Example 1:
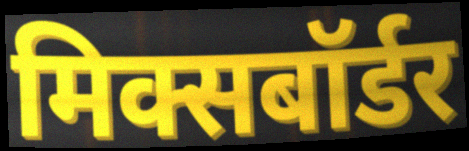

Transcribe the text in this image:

मिक्सबॉर्डर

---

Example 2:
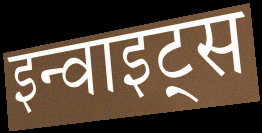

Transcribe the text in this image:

इन्वाइट्स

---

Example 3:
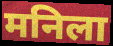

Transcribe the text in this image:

मनिला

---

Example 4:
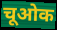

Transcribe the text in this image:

चूओक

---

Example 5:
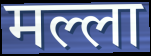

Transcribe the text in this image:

मल्‍ला